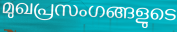
മുഖപ്രസംഗങ്ങളുടെ